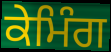
ਕੇਮਿੰਗ